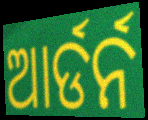
ଆର୍ଡର୍ନ